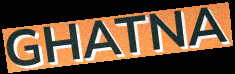
GHATNA